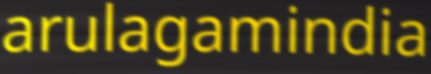
arulagamindia